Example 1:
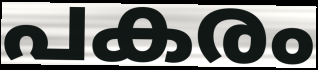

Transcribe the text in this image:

പകരം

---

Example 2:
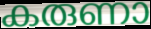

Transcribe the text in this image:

കരുണാ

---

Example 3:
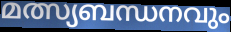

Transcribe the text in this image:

മത്സ്യബന്ധനവും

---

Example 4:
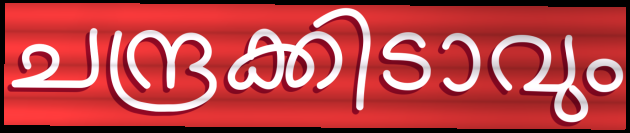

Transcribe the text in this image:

ചന്ദ്രക്കിടാവും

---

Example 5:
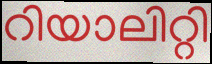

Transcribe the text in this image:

റിയാലിറ്റി